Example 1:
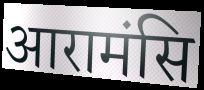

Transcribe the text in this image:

आरामंसि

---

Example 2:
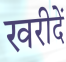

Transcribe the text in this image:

खरीदें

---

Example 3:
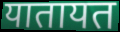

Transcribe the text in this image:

यातायत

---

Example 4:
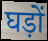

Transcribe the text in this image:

घड़ों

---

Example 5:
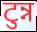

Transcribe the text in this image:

टुन्न